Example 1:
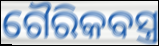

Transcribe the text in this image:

ଗୈରିକବସ୍ତ୍ର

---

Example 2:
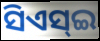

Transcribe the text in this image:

ସିଏସ୍ଇ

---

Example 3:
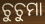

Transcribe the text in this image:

ଚୁଚୁମା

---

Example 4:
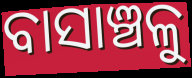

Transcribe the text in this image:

ବାସାଞ୍ଚଳୁ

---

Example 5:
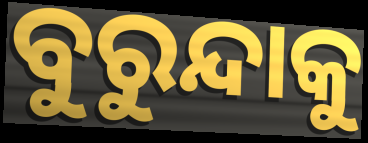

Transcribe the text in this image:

ବୁରୁନ୍ଦାକୁ